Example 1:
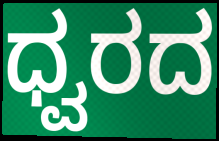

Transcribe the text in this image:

ಧ್ವರದ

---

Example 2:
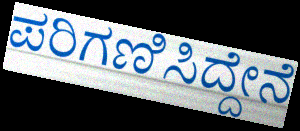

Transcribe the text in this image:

ಪರಿಗಣಿಸಿದ್ದೇನೆ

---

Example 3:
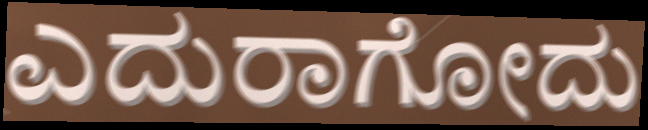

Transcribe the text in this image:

ಎದುರಾಗೋದು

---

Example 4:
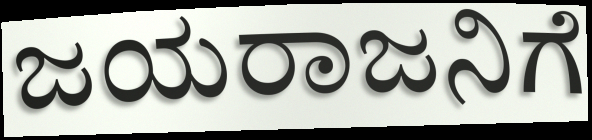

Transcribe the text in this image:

ಜಯರಾಜನಿಗೆ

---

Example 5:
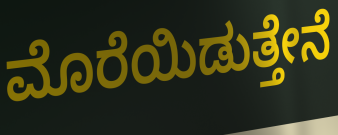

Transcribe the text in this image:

ಮೊರೆಯಿಡುತ್ತೇನೆ